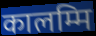
कालम्मि